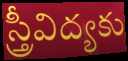
స్త్రీవిద్యకు